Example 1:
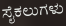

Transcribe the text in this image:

ಸೈಕಲುಗಳು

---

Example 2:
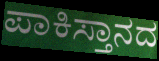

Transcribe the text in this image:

ಪಾಕಿಸ್ತಾನದ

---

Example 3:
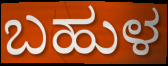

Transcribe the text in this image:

ಬಹುಳ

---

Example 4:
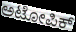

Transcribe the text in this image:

ಅಟೋಪಿಕ್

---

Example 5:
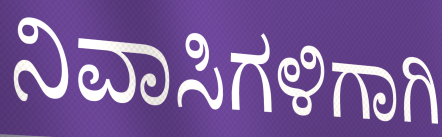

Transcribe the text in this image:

ನಿವಾಸಿಗಳಿಗಾಗಿ